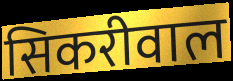
सिकरीवाल